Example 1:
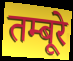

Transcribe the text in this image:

तम्बूरे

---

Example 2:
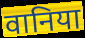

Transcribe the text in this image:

वानिया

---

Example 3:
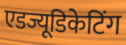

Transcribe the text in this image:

एडज्यूडिकेटिंग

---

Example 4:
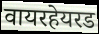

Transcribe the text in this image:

वायरहेयरड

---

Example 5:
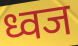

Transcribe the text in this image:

ध्वज